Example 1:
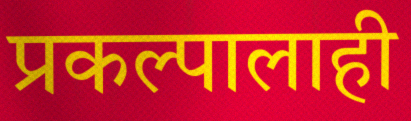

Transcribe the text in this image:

प्रकल्पालाही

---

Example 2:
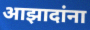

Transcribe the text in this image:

आझादांना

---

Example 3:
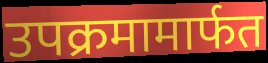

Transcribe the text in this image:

उपक्रमामार्फत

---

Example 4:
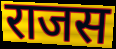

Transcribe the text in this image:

राजस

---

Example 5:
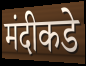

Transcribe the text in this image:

मंदीकडे